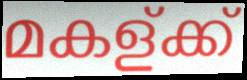
മകള്ക്ക്